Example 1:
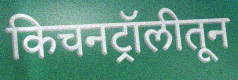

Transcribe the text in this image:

किचनट्रॉलीतून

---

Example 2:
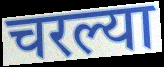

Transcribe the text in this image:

चरल्या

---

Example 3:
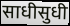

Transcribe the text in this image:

साधीसुधी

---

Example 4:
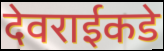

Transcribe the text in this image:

देवराईकडे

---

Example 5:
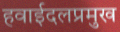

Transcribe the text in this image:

हवाईदलप्रमुख